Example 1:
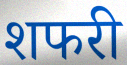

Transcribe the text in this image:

शफरी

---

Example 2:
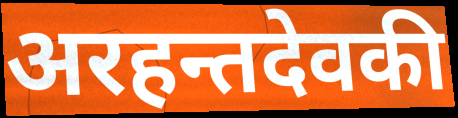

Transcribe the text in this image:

अरहन्तदेवकी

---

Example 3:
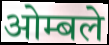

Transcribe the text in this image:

ओम्बले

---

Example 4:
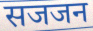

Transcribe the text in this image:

सजजन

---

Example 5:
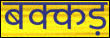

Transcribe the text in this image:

बक्कड़